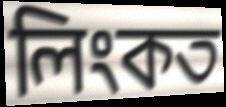
লিংকত